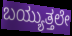
ಬಯ್ಯುತ್ತಲೇ